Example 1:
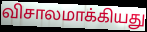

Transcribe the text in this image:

விசாலமாக்கியது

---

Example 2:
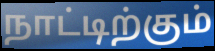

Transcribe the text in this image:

நாட்டிற்கும்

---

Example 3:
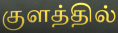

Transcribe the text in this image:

குளத்தில்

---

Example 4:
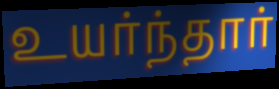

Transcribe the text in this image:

உயர்ந்தார்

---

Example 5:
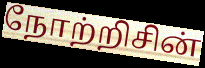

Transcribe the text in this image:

நோற்றிசின்